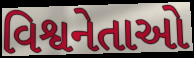
વિશ્વનેતાઓ